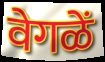
वेगळें